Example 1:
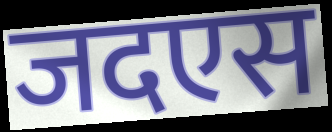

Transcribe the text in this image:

जदएस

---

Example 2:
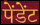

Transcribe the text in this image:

पेंडेंट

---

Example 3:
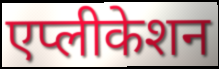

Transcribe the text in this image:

एप्लीकेशन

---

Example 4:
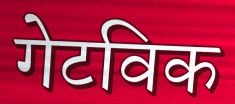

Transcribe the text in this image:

गेटविक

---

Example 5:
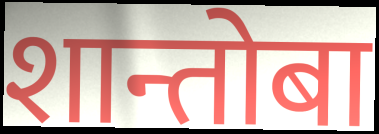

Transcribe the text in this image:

शान्तोबा